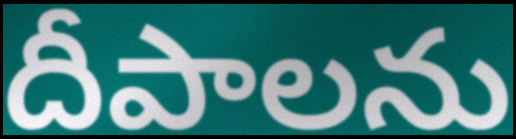
దీపాలను